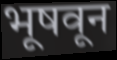
भूषवून